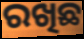
ରଖିଛ